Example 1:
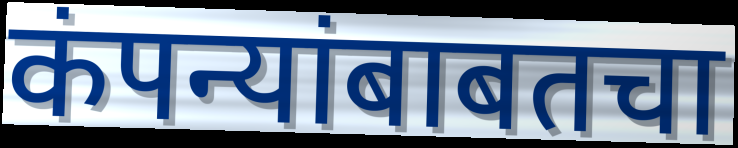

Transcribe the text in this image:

कंपन्यांबाबतचा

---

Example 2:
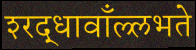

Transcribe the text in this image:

श्रद्धावाँल्लभते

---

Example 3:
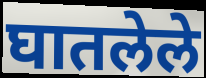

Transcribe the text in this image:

घातलेले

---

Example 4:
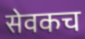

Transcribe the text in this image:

सेवकच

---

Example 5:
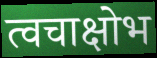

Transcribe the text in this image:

त्वचाक्षोभ